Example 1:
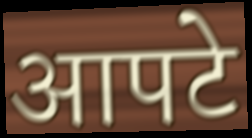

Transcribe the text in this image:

आपटे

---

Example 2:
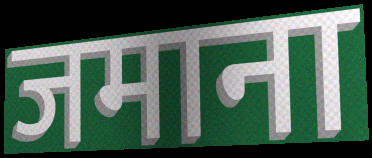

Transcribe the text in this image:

जमाना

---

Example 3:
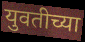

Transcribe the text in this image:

युवतीच्या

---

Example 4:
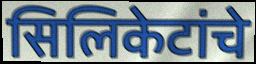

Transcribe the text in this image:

सिलिकेटांचे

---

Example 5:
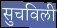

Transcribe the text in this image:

सुचविली